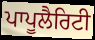
ਪਾਪੂਲੈਰਿਟੀ